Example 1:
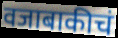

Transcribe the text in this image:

वजाबाकीचं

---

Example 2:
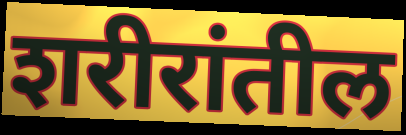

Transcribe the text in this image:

शरीरांतील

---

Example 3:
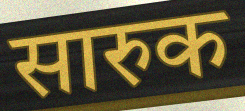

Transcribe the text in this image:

सारुक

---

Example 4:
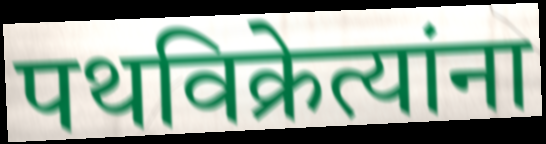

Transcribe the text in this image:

पथविक्रेत्यांना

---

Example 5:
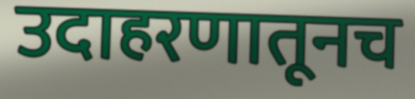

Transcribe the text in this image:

उदाहरणातूनच